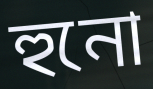
হুনো